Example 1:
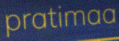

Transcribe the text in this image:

pratimaa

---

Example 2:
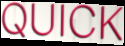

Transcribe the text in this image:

QUICK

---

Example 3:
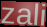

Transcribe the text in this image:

zali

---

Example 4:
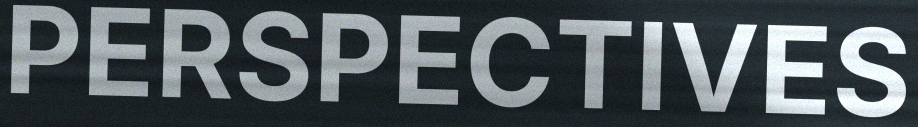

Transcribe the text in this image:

PERSPECTIVES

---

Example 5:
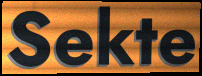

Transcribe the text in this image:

Sekte